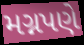
મગ્નપણે